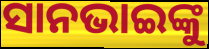
ସାନଭାଇଙ୍କୁ